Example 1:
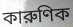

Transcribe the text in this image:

কারুণিক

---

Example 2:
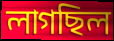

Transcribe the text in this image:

লাগছিল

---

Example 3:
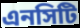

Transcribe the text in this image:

এনসিটি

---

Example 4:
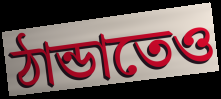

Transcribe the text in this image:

ঠান্ডাতেও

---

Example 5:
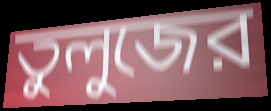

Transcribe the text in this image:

তুলুজের